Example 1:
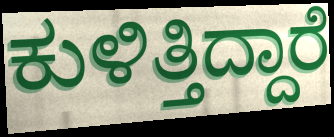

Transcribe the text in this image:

ಕುಳಿತ್ತಿದ್ದಾರೆ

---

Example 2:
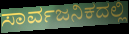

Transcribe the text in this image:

ಸಾರ್ವಜನಿಕದಲ್ಲಿ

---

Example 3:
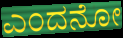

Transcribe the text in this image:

ಎಂದನೋ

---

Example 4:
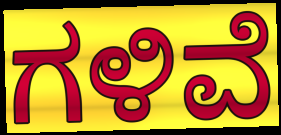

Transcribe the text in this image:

ಗಳಿವೆ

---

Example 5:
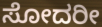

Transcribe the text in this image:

ಸೋದರೀ